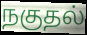
நகுதல்